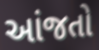
આંજતો